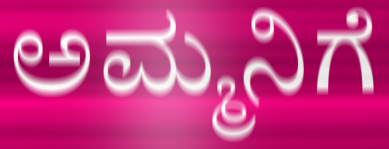
ಅಮ್ಮನಿಗೆ